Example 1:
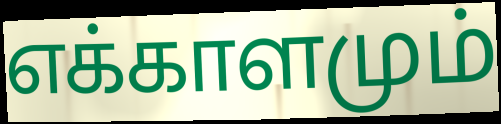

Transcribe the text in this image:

எக்காளமும்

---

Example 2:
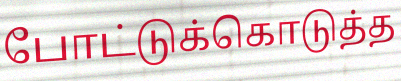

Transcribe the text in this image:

போட்டுக்கொடுத்த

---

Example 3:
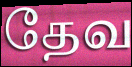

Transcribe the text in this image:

தேவ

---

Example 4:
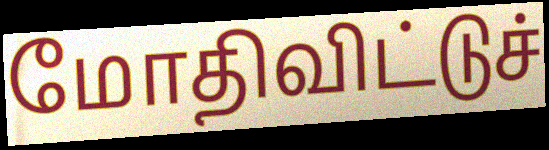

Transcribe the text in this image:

மோதிவிட்டுச்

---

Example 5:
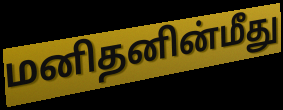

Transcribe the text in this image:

மனிதனின்மீது